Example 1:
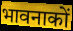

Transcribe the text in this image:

भावनाकों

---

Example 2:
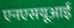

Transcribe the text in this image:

एनएसयूआई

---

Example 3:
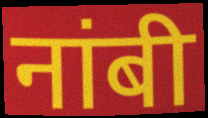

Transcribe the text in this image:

नांबी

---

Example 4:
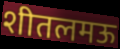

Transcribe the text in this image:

शीतलमऊ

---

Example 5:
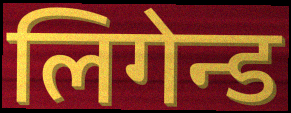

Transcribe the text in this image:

लिगेन्ड